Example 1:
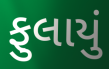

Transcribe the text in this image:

ફુલાયું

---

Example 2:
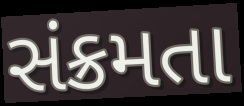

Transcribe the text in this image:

સંક્રમતા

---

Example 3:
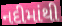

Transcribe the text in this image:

નદીમાંથી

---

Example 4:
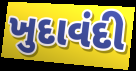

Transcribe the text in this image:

ખુદાવંદી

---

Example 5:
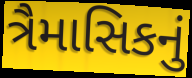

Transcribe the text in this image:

ત્રૈમાસિકનું